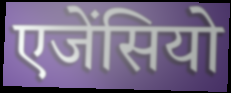
एजेंसियो